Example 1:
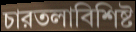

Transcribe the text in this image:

চারতলাবিশিষ্ট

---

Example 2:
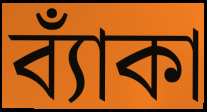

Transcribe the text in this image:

ব্যাঁকা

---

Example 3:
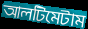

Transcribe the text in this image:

আলটিমেটাম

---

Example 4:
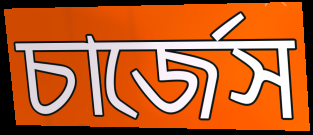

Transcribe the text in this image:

চার্জেস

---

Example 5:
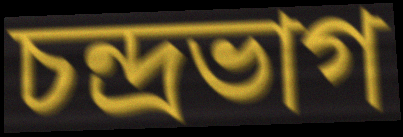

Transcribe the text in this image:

চন্দ্রভাগ